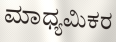
ಮಾಧ್ಯಮಿಕರ